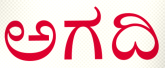
ಅಗದಿ